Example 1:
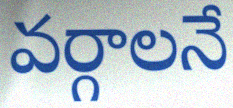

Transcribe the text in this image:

వర్గాలనే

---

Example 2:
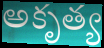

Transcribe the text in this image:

అకృత్య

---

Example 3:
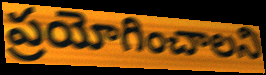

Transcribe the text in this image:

ప్రయోగించాలని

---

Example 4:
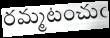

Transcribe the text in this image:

రమ్మటంచుఁ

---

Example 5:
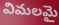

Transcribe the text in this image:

విమలమై